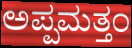
ಅಪ್ಪಮತ್ತಂ